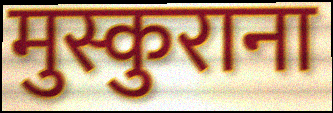
मुस्कुराना